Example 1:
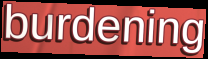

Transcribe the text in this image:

burdening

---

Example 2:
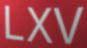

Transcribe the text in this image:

LXV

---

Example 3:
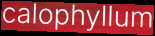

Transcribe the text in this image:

calophyllum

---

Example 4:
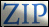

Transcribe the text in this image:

ZIP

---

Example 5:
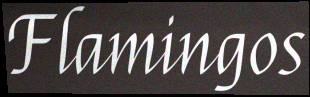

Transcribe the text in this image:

Flamingos